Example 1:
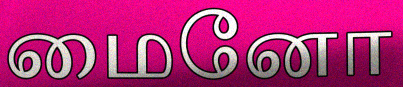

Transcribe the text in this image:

மைனோ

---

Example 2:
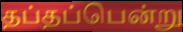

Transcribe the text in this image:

தப்தப்பென்று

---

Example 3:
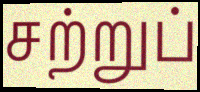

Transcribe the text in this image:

சற்றுப்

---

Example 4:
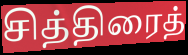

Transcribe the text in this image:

சித்திரைத்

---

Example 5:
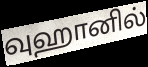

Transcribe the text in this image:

வுஹானில்